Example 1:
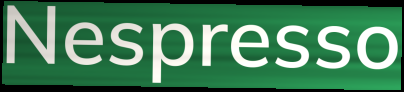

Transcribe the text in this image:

Nespresso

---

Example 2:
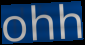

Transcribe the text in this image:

ohh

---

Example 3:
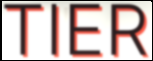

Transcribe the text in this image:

TIER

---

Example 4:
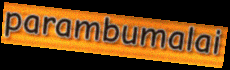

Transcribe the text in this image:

parambumalai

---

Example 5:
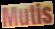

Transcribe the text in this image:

Mutis